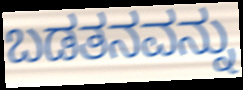
ಬಡತನವನ್ನು